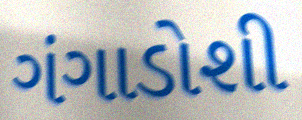
ગંગાડોશી